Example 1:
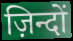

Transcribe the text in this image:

ज़िन्दों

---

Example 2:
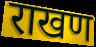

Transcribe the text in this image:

राखण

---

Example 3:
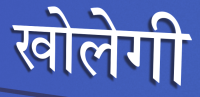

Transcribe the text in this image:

खोलेगी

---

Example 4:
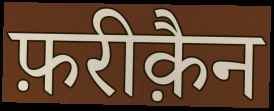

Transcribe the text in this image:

फ़रीक़ैन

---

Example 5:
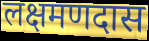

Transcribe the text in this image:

लक्षमणदास